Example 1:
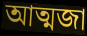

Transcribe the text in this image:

আত্মজা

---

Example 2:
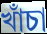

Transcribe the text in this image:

খাঁচা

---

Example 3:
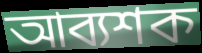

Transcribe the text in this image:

আব্যশক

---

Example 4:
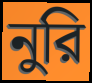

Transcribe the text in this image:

নুরি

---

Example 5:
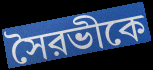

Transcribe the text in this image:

সৈরভীকে